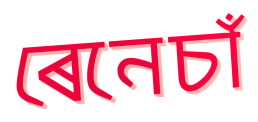
ৰেনেচাঁ